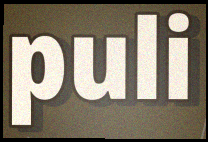
puli